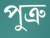
পুত্রু